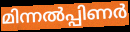
മിന്നൽപ്പിണർ